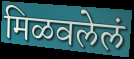
मिळवलेलं